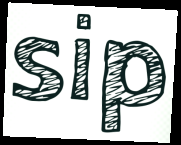
sip